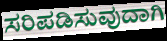
ಸರಿಪಡಿಸುವುದಾಗಿ